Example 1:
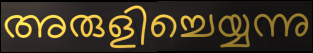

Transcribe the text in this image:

അരുളിച്ചെയ്യന്നു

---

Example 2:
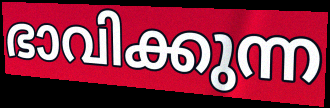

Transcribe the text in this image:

ഭാവിക്കുന്ന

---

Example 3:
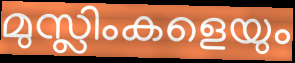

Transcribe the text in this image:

മുസ്ലിംകളെയും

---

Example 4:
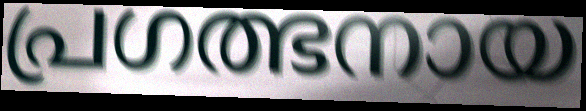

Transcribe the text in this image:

പ്രഗത്ഭനായ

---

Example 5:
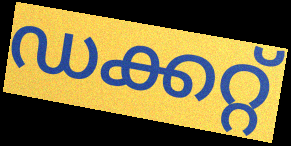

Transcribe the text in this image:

ഡക്കറ്റ്